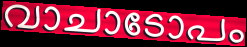
വാചാടോപം